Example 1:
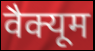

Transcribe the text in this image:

वैक्यूम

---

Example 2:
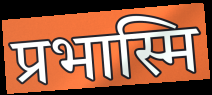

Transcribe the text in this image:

प्रभास्मि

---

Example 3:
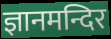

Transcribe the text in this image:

ज्ञानमन्दिर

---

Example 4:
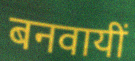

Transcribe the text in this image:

बनवायीं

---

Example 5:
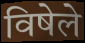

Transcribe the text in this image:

विषेले